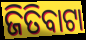
ଜିତିବାଟା